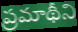
ప్రమాథీని